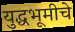
युद्धभूमीचे